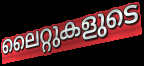
ലൈറ്റുകളുടെ